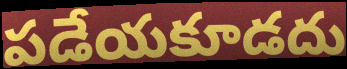
పడేయకూడదు